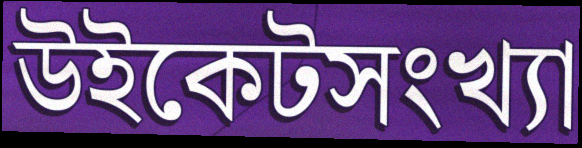
উইকেটসংখ্যা